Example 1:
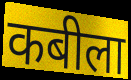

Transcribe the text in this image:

कबीला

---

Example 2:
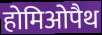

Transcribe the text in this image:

होमिओपैथ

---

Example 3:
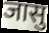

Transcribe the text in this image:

जासु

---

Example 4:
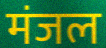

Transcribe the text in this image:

मंजल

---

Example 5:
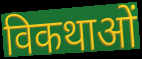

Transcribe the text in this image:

विकथाओं